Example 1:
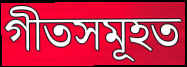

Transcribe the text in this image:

গীতসমূহত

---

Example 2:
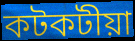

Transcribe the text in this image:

কটকটীয়া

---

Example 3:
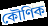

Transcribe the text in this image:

কৌণিক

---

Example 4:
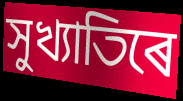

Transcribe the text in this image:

সুখ্যাতিৰে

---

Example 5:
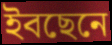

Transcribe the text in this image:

ইবছেনে